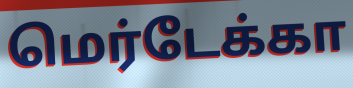
மெர்டேக்கா